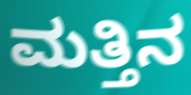
ಮತ್ತಿನ